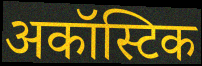
अकॉस्टिक